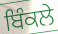
ਬਿੰਕਲੇ